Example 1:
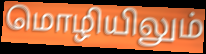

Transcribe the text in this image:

மொழியிலும்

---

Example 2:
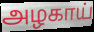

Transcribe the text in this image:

அழகாய்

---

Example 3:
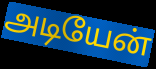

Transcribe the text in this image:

அடியேன்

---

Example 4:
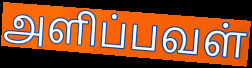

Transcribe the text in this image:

அளிப்பவள்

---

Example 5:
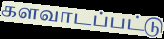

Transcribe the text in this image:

களவாடப்பட்டு